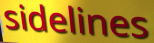
sidelines